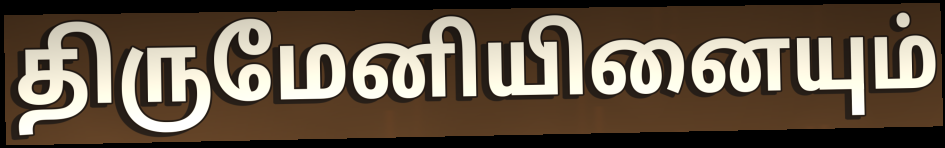
திருமேனியினையும்